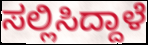
ಸಲ್ಲಿಸಿದ್ದಾಳೆ